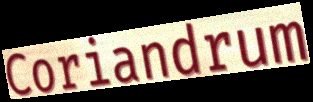
Coriandrum